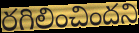
రగిలించిందని